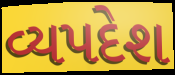
વ્યપદેશ